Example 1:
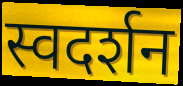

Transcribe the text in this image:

स्वदर्शन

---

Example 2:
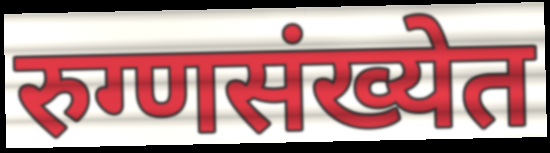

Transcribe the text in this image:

रुग्णसंख्येत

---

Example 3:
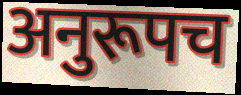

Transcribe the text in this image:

अनुरूपच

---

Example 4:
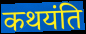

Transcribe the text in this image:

कथयंति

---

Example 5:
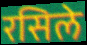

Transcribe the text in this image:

रसिले